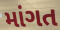
માંગત